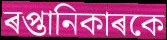
ৰপ্তানিকাৰকে